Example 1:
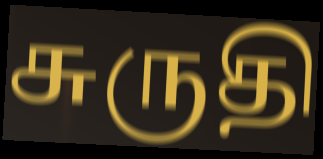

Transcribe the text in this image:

சுருதி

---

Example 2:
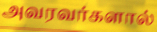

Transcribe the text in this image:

அவரவர்களால்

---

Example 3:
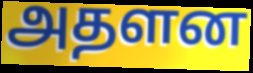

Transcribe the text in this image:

அதளன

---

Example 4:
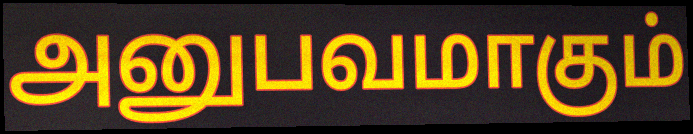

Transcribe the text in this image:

அனுபவமாகும்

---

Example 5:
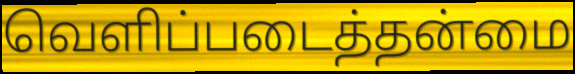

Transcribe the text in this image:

வெளிப்படைத்தன்மை